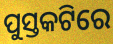
ପୁସ୍ତକଟିରେ